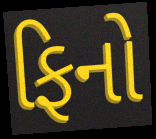
ફિનો